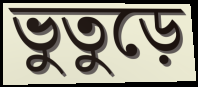
ভুতুড়ে